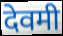
देवमी